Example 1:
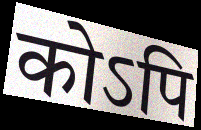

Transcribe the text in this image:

कोऽपि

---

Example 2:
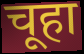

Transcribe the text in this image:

चूहा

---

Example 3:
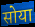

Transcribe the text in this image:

सोया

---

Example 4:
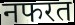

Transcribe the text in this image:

नफरत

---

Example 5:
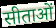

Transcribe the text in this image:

सीताओं